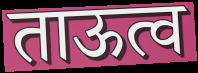
ताऊत्व